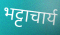
भट्टाचार्य